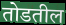
तोडतील